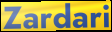
Zardari